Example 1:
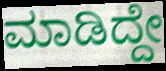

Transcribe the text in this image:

ಮಾಡಿದ್ದೇ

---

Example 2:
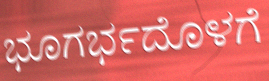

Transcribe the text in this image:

ಭೂಗರ್ಭದೊಳಗೆ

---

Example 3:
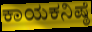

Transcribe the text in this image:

ಕಾಯಕನಿಷ್ಠೆ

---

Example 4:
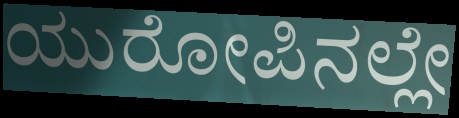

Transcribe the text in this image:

ಯುರೋಪಿನಲ್ಲೇ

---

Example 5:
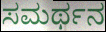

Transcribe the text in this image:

ಸಮರ್ಥನ